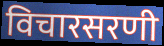
विचारसरणी